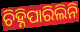
ଚିହ୍ନିପାରିଲିନି